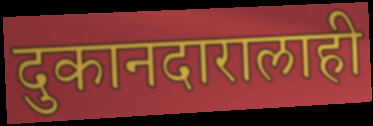
दुकानदारालाही